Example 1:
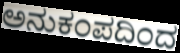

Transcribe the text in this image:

ಅನುಕಂಪದಿಂದ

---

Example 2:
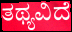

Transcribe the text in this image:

ತಥ್ಯವಿದೆ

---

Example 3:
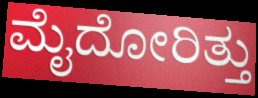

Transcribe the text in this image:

ಮೈದೋರಿತ್ತು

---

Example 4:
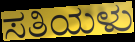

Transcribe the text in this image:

ಸತಿಯಳು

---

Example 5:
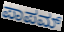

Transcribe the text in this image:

ಪಾಪಮ್